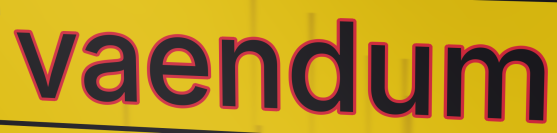
vaendum